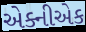
એક્નીએક